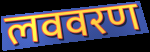
लववरण